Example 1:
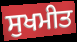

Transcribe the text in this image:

ਸੁਖਮੀਤ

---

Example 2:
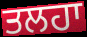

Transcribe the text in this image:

ਤਲਹਾ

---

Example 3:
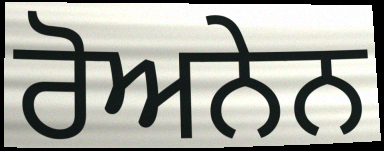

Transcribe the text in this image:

ਰੋਅਨੇਨ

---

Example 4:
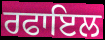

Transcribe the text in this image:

ਰਫਾਇਲ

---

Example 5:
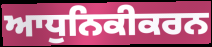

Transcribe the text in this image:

ਆਧੁਨਿਕੀਕਰਨ